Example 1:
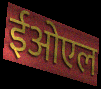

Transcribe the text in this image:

ईओएल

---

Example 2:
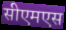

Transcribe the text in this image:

सीएमएस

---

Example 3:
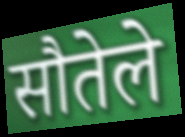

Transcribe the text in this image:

सौतेले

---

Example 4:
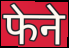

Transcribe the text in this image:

फेने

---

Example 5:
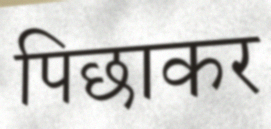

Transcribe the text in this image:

पिछाकर